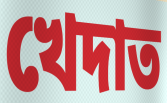
খেদাত